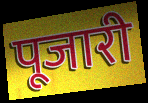
पूजारी